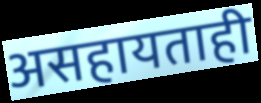
असहायताही